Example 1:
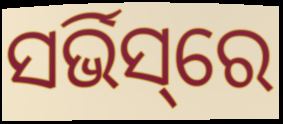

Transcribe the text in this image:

ସର୍ଭିସ୍‌ରେ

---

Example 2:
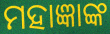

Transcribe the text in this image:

ମହାଜ୍ଞାଙ୍କ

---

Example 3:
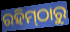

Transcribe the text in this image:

ରହିମ୍‌ଠାରୁ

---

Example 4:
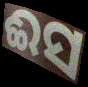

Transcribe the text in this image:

ଈସ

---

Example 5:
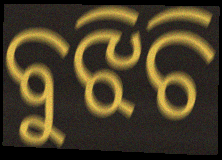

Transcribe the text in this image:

ବୁଝିଚି